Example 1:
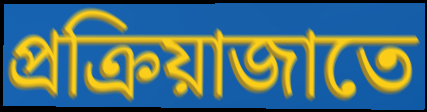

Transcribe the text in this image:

প্রক্রিয়াজাতে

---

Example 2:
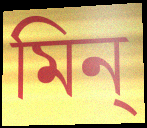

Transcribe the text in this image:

মিন্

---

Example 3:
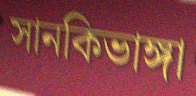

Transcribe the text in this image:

সানকিভাঙ্গা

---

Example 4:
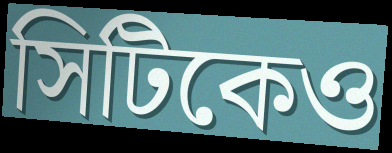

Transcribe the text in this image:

সিটিকেও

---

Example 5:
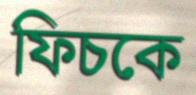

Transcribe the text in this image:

ফিচকে